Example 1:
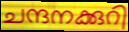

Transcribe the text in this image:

ചന്ദനക്കുറി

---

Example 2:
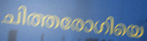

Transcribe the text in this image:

ചിത്തരോഗിയെ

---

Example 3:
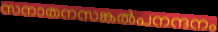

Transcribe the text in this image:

സനാതനസങ്കൽപനന്ദനം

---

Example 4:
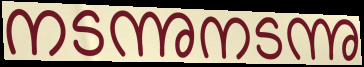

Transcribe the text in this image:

നടന്നുനടന്നു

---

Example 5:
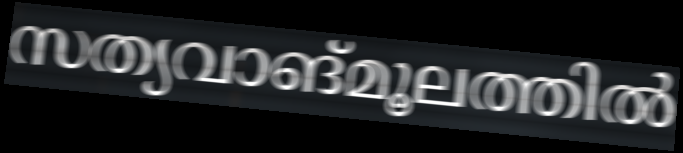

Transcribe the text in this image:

സത്യവാങ്മൂലത്തിൽ